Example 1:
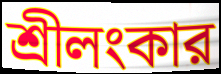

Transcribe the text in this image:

শ্রীলংকার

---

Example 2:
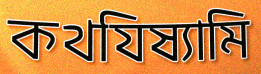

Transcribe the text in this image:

কথযিষ্যামি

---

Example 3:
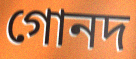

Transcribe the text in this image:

গোনদ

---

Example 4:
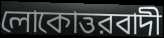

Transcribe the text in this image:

লোকোত্তরবাদী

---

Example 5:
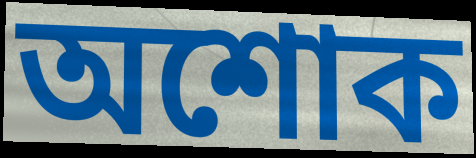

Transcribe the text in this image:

অশোক